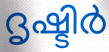
ദൃഷ്ടിർ